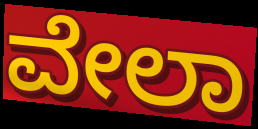
ವೇಲಾ